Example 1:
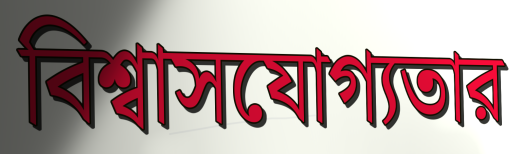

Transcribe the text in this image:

বিশ্বাসযোগ্যতার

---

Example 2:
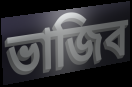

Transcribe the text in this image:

ভাজিব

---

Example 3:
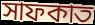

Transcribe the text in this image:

সাফকাত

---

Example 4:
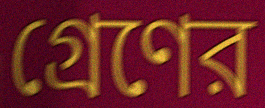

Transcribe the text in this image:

গ্রেণের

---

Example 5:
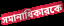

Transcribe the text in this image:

সমানাধিকারকে